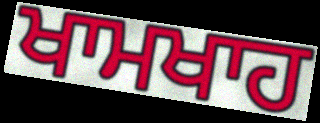
ਖਾਮਖਾਹ